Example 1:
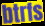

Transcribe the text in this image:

btrfs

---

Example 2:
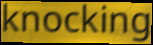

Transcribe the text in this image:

knocking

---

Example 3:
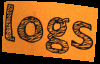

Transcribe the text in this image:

logs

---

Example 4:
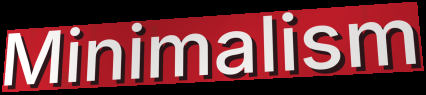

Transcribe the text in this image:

Minimalism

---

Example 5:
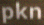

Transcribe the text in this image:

pkn